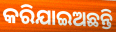
କରିଯାଇଅଛନ୍ତି